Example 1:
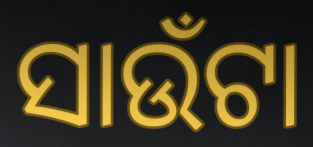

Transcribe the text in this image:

ସାଉଁଟା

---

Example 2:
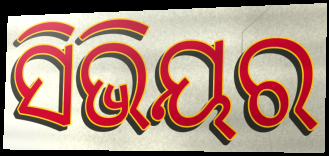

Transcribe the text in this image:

ସିଭିୟର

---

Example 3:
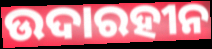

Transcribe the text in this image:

ଉଦାରହୀନ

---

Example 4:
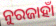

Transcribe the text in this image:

ନୁରଜାହାଁ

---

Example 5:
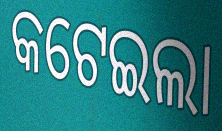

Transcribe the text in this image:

କଟେଇଲା